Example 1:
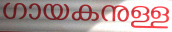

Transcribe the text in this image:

ഗായകനുള്ള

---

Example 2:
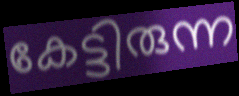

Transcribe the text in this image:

കേട്ടിരുന്ന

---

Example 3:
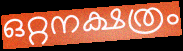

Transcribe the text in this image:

ഒറ്റനക്ഷത്രം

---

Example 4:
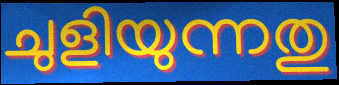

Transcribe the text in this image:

ചുളിയുന്നതു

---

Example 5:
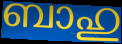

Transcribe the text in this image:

ബാഹു